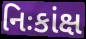
નિઃકાંક્ષ